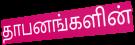
தாபனங்களின்